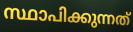
സ്ഥാപിക്കുന്നത്